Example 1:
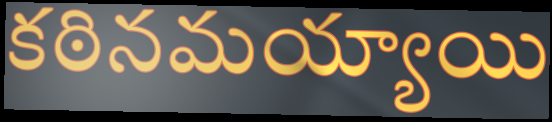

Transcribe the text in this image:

కఠినమయ్యాయి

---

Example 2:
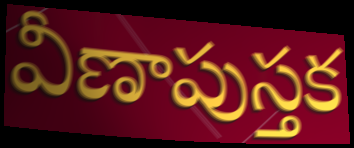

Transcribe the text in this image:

వీణాపుస్తక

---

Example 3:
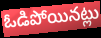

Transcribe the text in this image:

ఓడిపోయినట్లు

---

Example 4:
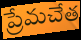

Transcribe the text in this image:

ప్రేమచేత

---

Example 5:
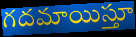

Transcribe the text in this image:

గదమాయిస్తూ